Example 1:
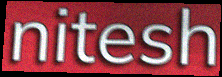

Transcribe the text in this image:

nitesh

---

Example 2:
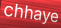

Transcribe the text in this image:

chhaye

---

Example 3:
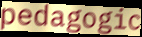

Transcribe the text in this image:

pedagogic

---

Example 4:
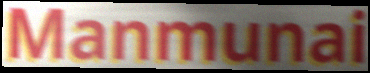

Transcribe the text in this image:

Manmunai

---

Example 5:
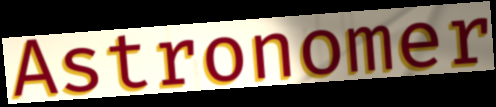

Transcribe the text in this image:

Astronomer